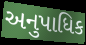
અનુપાધિક